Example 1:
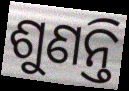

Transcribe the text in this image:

ଶୁଣନ୍ତି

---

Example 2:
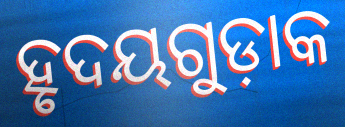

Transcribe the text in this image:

ହୃଦୟଗୁଡ଼ାକ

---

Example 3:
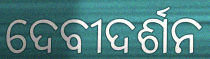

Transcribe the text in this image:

ଦେବୀଦର୍ଶନ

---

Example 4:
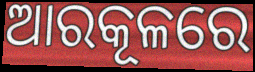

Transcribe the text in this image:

ଆରକୂଳରେ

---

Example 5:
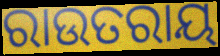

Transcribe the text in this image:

ରାଉତରାୟ